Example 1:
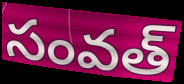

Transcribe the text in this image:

సంవత్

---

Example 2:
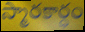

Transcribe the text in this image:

స్మారకార్ధం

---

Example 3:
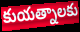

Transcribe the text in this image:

కుయత్నాలకు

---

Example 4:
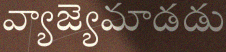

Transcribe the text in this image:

వ్యాజ్యెమాడడు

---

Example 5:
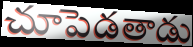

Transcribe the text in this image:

చూపెడతాడు